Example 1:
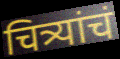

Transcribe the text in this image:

चित्र्यांचं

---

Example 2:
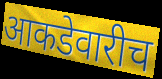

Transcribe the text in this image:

आकडेवारीच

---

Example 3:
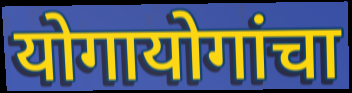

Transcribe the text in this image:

योगायोगांचा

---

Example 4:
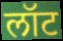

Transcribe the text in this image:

लॉट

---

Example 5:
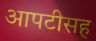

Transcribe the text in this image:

आपटीसह